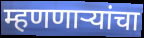
म्हणणाऱ्यांचा